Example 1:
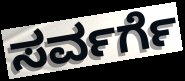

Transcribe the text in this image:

ಸರ್ವರ್ಗೆ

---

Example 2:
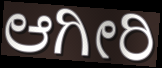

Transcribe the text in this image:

ಆಗೀರಿ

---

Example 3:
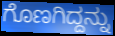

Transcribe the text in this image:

ಗೊಣಗಿದ್ದನ್ನು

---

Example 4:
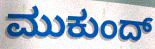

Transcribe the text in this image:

ಮುಕುಂದ್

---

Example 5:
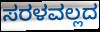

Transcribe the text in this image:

ಸರಳವಲ್ಲದ